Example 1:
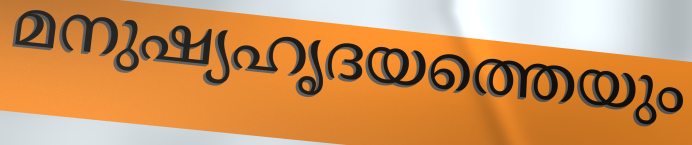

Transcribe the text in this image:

മനുഷ്യഹൃദയത്തെയും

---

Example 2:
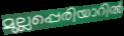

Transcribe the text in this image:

മുല്ലപ്പെരിയാറിൽ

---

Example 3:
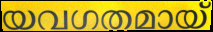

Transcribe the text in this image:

യവഗതമായ്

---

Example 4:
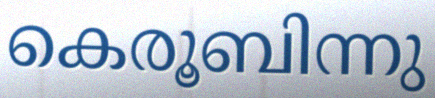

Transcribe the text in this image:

കെരൂബിന്നു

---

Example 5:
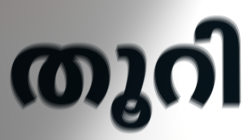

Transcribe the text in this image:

തൂറി